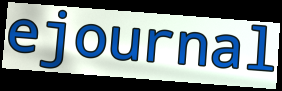
ejournal